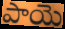
పాయె